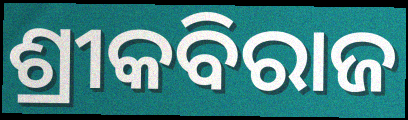
ଶ୍ରୀକବିରାଜ